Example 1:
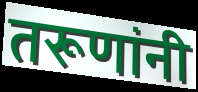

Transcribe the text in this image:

तरूणांनी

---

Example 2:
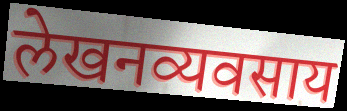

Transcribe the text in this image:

लेखनव्यवसाय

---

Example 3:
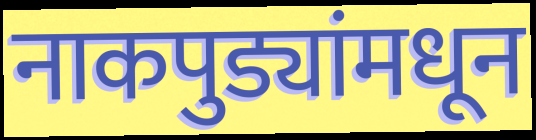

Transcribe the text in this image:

नाकपुड्यांमधून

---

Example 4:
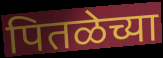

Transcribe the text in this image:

पितळेच्या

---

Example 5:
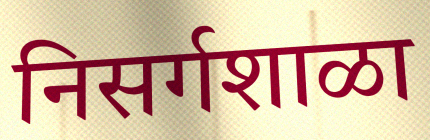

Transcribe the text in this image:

निसर्गशाळा